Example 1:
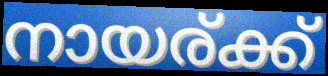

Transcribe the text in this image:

നായര്ക്ക്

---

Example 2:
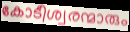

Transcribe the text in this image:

കോടീശ്വരന്മാരും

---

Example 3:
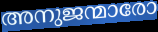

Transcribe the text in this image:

അനുജന്മാരോ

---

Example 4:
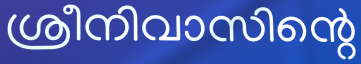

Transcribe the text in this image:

ശ്രീനിവാസിന്റെ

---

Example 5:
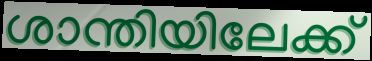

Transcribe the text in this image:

ശാന്തിയിലേക്ക്